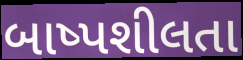
બાષ્પશીલતા